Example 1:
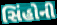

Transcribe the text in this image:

સિંહોની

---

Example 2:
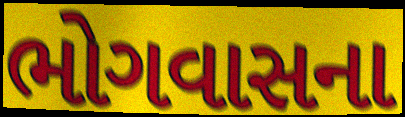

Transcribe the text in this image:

ભોગવાસના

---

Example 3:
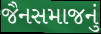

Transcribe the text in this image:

જૈનસમાજનું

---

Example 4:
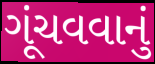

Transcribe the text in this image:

ગૂંચવવાનું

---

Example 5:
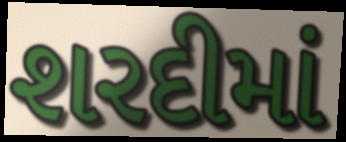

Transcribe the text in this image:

શરદીમાં